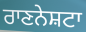
ਰਾਣਨੇਸ਼ਟਾ